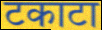
टकाटा